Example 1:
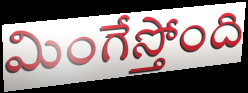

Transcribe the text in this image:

మింగేస్తోంది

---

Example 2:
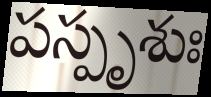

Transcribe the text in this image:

పస్పృశుః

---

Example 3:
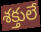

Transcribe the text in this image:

శక్తులే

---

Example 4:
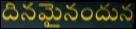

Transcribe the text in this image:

దినమైనందున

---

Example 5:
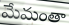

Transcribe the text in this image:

మేమంతా